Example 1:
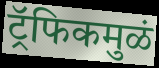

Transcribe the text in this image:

ट्रॅफिकमुळं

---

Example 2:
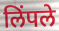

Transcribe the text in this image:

लिंपले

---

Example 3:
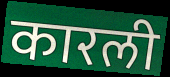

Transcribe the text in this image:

कारली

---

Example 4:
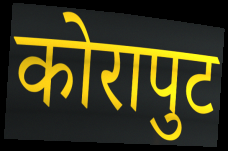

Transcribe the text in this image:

कोरापुट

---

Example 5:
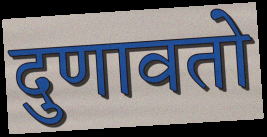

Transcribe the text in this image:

दुणावतो